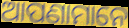
ଆପଣାମାନେ